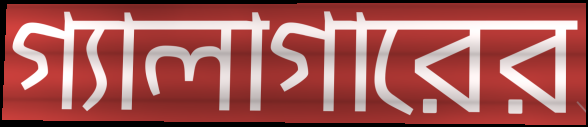
গ্যালাগারের